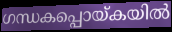
ഗന്ധകപ്പൊയ്കയിൽ